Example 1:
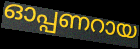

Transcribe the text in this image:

ഓപ്പണറായ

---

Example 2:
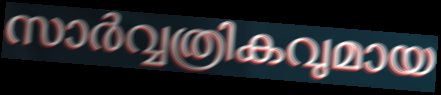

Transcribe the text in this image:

സാർവ്വത്രികവുമായ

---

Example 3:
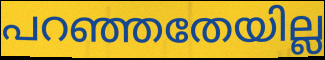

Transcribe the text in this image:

പറഞ്ഞതേയില്ല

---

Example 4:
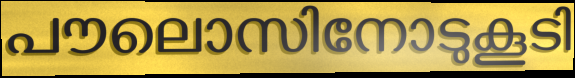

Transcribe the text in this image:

പൗലൊസിനോടുകൂടി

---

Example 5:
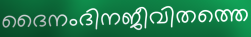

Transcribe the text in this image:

ദൈനംദിനജീവിതത്തെ